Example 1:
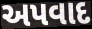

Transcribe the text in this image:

અપવાદ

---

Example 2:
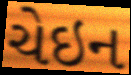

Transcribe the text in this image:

ચેઇન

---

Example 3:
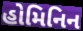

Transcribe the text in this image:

હોમિનિન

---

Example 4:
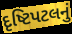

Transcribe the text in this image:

દૃષ્ટિપટલનું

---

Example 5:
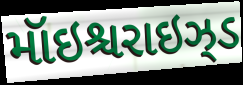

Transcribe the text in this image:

મૉઇશ્ચરાઇઝ્ડ